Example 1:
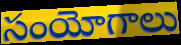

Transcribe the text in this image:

సంయోగాలు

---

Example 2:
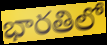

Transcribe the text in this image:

భారతిలో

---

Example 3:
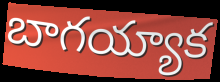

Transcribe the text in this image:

బాగయ్యాక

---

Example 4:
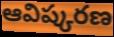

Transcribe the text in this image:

ఆవిష్కరణ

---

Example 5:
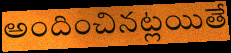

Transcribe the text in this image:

అందించినట్లయితే